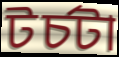
টর্চটা